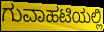
ಗುವಾಹಟಿಯಲ್ಲಿ